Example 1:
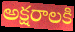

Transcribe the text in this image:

అక్షరాలకి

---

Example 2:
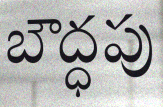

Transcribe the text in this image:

బౌద్ధపు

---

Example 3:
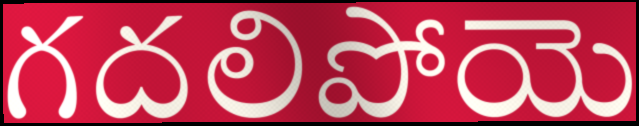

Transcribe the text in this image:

గదలిపోయె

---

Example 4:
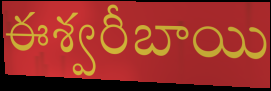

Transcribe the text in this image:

ఈశ్వరీబాయి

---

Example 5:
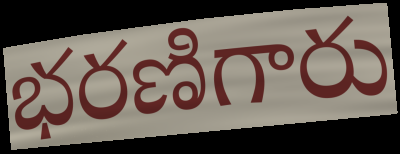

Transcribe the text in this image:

భరణిగారు